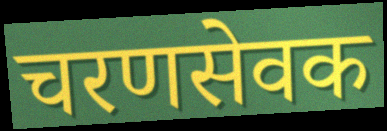
चरणसेवक